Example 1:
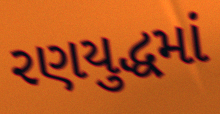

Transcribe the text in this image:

રણયુદ્ધમાં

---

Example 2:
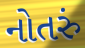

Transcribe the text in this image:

નોતરું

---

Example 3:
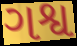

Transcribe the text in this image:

ગશ્વ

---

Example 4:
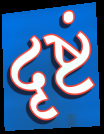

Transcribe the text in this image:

દૃષ્ટં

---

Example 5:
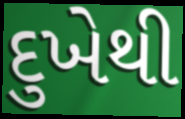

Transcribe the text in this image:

દુખેથી